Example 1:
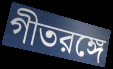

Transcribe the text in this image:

গীতরঙ্গে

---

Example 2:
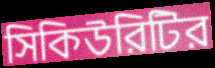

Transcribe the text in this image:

সিকিউরিটির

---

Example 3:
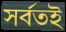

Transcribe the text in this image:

সর্বতই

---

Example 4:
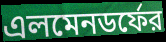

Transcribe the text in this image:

এলমেনডর্ফের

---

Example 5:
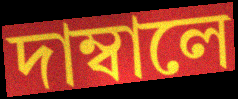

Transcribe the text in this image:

দাম্বালে